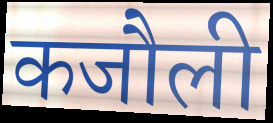
कजौली